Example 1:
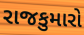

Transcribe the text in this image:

રાજકુમારો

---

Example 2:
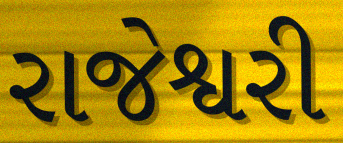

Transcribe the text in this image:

રાજેશ્વરી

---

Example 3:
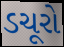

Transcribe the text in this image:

ડચૂરો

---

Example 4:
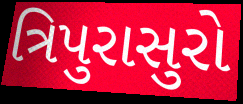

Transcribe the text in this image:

ત્રિપુરાસુરો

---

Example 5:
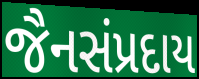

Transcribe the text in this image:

જૈનસંપ્રદાય